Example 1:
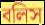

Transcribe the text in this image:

বলিস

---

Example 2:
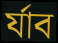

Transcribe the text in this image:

র্যাব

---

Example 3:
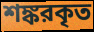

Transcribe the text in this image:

শঙ্করকৃত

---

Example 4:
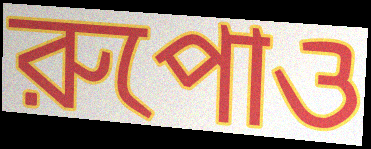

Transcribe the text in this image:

রুপোও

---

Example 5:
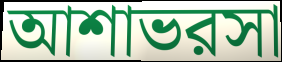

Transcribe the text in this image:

আশাভরসা